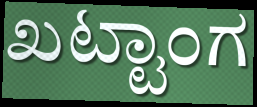
ಖಟ್ಟಾಂಗ